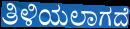
ತಿಳಿಯಲಾಗದೆ